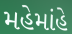
મહેમાંહે